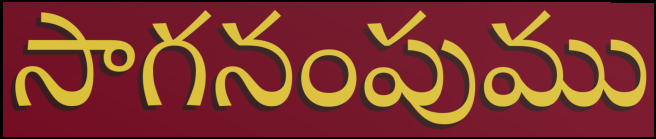
సాగనంపుము